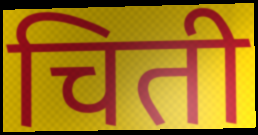
चिती